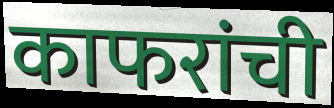
काफरांची